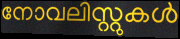
നോവലിസ്റ്റുകൾ